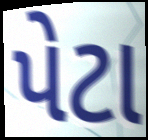
પેટા